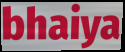
bhaiya